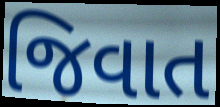
જિવાત